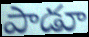
పాడూ